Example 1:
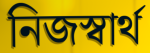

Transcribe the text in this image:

নিজস্বার্থ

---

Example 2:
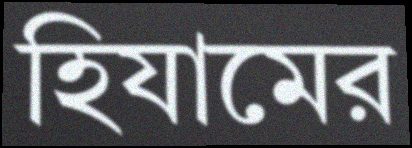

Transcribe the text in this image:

হিযামের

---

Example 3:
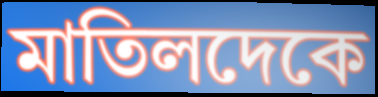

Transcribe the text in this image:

মাতিলদেকে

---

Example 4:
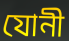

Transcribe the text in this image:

যোনী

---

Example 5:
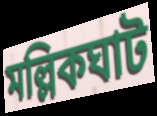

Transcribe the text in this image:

মল্লিকঘাট